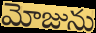
మోజును